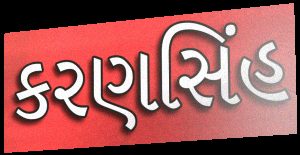
કરણસિંહ